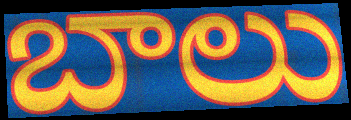
బాలు